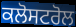
ਕਲੋਸਟਰੋਲ